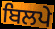
ਬਿਲਪੇ